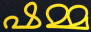
ഷമ്മ